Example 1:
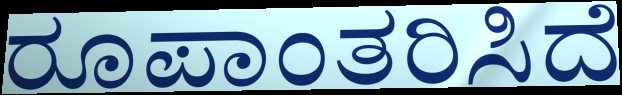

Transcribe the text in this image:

ರೂಪಾಂತರಿಸಿದೆ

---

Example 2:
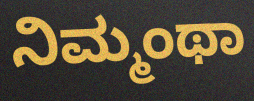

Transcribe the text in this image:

ನಿಮ್ಮಂಥಾ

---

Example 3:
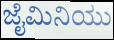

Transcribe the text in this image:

ಜೈಮಿನಿಯು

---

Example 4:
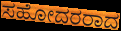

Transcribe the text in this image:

ಸಹೋದರರಾದ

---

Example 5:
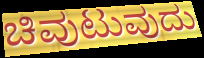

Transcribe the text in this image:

ಚಿವುಟುವುದು